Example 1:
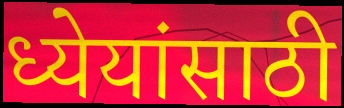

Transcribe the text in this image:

ध्येयांसाठी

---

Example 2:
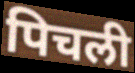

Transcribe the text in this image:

पिचली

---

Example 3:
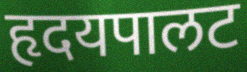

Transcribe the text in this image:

हृदयपालट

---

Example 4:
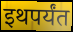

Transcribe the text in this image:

इथपर्यंत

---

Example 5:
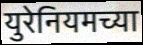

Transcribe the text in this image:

युरेनियमच्या